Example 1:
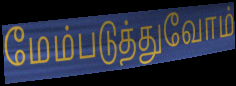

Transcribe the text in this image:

மேம்படுத்துவோம்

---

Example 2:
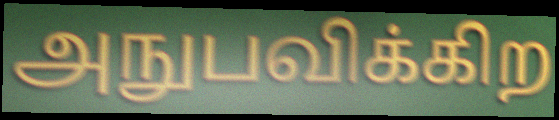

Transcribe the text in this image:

அநுபவிக்கிற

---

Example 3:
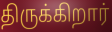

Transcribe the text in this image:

திருக்கிறார்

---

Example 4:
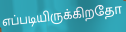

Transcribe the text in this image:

எப்படியிருக்கிறதோ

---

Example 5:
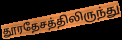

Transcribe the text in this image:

தூரதேசத்திலிருந்து